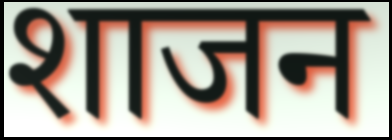
शाजन